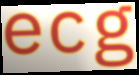
ecg